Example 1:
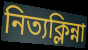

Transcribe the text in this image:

নিত্যক্লিন্না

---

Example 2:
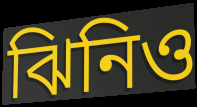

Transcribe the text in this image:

ঝিনিও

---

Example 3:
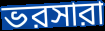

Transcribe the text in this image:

ভরসারা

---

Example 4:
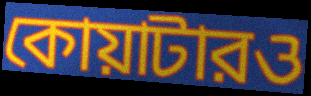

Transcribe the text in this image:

কোয়াটারও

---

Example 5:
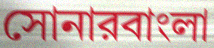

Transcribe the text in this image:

সোনারবাংলা